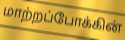
மாற்றப்போக்கின்